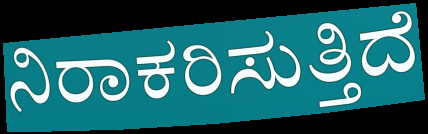
ನಿರಾಕರಿಸುತ್ತಿದೆ